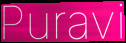
Puravi